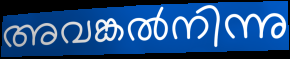
അവങ്കൽനിന്നു